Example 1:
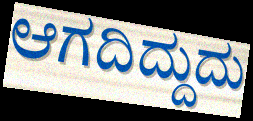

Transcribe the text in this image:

ಆಗದಿದ್ದುದು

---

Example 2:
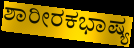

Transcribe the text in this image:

ಶಾರೀರಕಭಾಷ್ಯ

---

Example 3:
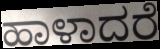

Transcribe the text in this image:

ಹಾಳಾದರೆ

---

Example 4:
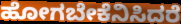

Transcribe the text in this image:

ಹೋಗಬೇಕೆನಿಸಿದರೆ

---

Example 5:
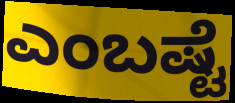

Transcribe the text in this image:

ಎಂಬಷ್ಟೆ